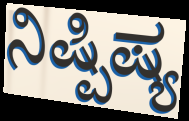
ನಿಷ್ಪಿಷ್ಯ